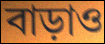
বাড়াও